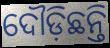
ଦୌଡ଼ିଛନ୍ତି